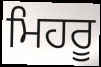
ਮਿਹਰੂ